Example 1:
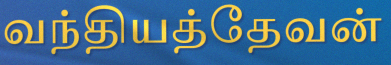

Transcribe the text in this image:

வந்தியத்தேவன்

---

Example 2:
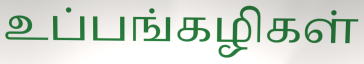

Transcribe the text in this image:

உப்பங்கழிகள்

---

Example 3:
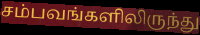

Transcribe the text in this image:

சம்பவங்களிலிருந்து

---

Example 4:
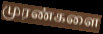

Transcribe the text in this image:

முரண்களை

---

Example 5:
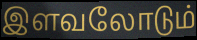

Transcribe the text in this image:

இளவலோடும்